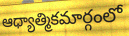
ఆధ్యాత్మికమార్గంలో